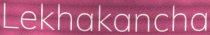
Lekhakancha